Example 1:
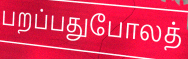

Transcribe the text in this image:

பறப்பதுபோலத்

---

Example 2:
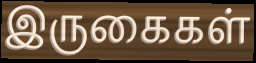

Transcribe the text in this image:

இருகைகள்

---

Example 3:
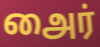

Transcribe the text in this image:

அைர்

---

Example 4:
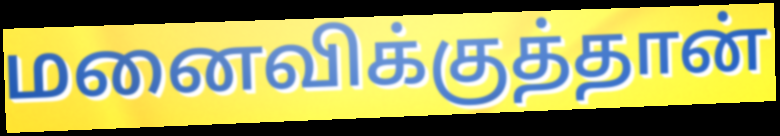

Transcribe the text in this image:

மனைவிக்குத்தான்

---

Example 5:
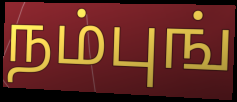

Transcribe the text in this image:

நம்புங்